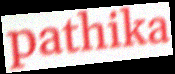
pathika